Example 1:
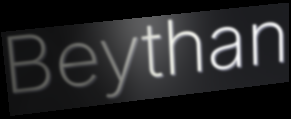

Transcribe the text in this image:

Beythan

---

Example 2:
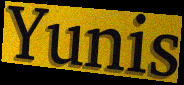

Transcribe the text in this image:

Yunis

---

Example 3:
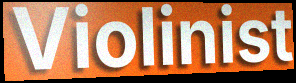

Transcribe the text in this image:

Violinist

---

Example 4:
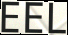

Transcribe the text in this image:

EEL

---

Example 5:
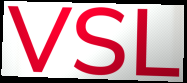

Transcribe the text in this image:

VSL